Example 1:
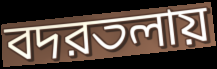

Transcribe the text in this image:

বদরতলায়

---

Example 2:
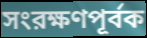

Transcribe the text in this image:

সংরক্ষণপূর্বক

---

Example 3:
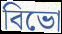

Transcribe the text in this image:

বিভো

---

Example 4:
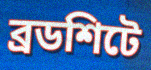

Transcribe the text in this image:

ব্রডশিটে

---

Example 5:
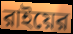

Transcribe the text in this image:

রাইয়ের